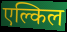
एल्किल